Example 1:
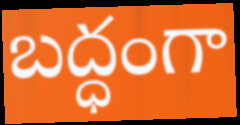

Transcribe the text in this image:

బద్ధంగా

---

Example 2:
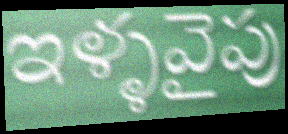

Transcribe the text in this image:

ఇళ్ళవైపు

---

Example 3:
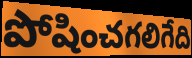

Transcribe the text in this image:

పోషించగలిగేది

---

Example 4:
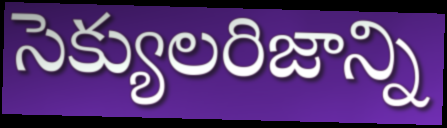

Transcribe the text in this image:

సెక్యులరిజాన్ని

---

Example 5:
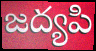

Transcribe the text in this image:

జద్యపి